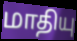
மாதியு